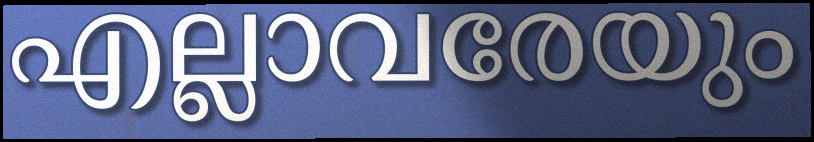
എല്ലാവരേയും